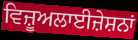
ਵਿਜ਼ੂਅਲਾਈਜ਼ੇਸ਼ਨਾਂ